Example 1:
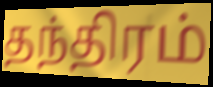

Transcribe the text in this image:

தந்திரம்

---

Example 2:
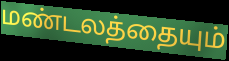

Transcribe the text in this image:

மண்டலத்தையும்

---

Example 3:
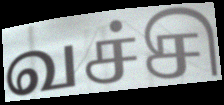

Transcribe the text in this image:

வச்சி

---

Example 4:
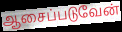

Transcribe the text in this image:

ஆசைப்படுவேன்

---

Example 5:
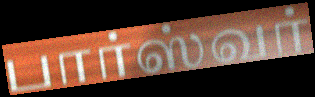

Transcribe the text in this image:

பார்ஸ்வர்